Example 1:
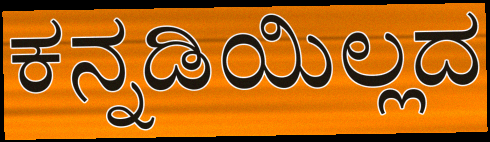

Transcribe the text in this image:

ಕನ್ನಡಿಯಿಲ್ಲದ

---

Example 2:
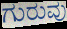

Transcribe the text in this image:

ಗುರುವು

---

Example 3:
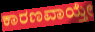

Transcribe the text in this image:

ಕಾರಣವಾಯ್ತೇ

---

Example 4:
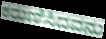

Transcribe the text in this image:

ಕರುಣಿಸಿದವನು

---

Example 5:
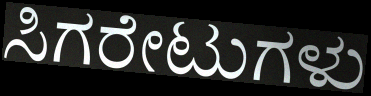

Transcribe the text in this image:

ಸಿಗರೇಟುಗಳು